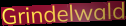
Grindelwald